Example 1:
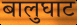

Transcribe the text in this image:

बालुघाट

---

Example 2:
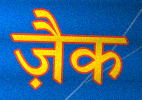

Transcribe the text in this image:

ज़ैक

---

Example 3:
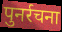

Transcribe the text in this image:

पुनर्रचना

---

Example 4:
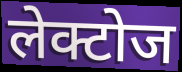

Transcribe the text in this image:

लेक्टोज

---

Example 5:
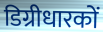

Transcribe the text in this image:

डिग्रीधारकों